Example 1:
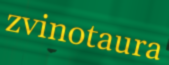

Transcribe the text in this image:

zvinotaura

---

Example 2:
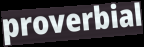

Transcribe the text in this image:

proverbial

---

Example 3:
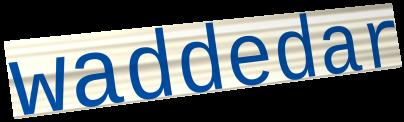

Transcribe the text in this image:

waddedar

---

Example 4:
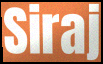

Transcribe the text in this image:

Siraj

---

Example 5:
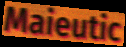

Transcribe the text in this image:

Maieutic